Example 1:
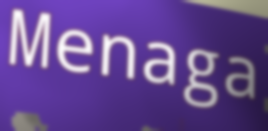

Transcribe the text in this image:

Menaga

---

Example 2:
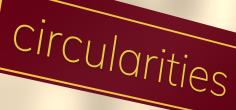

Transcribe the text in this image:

circularities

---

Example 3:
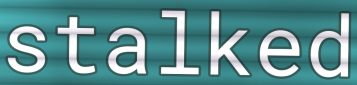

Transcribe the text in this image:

stalked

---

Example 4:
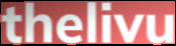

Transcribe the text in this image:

thelivu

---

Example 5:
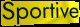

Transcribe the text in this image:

Sportive